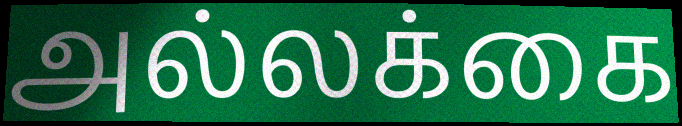
அல்லக்கை